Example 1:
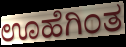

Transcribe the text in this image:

ಊಹೆಗಿಂತ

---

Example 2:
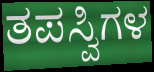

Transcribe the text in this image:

ತಪಸ್ವಿಗಳ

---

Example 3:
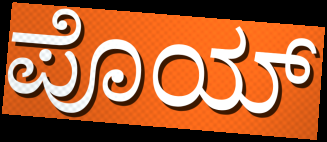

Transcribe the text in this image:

ಪೊಯ್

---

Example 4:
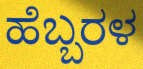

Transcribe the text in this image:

ಹೆಬ್ಬರಳ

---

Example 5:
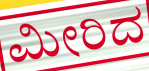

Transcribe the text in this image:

ಮೀರಿದ